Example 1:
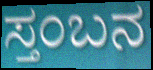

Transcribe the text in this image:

ಸ್ತಂಬನ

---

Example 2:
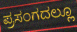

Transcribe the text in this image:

ಪ್ರಸಂಗದಲ್ಲೂ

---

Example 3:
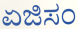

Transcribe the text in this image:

ಏಜಿಸಂ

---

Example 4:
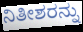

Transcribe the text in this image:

ನಿತೀಶರನ್ನು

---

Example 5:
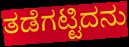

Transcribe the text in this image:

ತಡೆಗಟ್ಟಿದನು